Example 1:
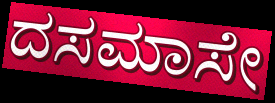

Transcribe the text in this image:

ದಸಮಾಸೇ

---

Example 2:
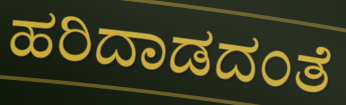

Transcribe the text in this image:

ಹರಿದಾಡದಂತೆ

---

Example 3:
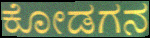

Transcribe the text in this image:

ಕೋಡಗನ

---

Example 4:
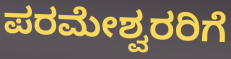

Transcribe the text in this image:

ಪರಮೇಶ್ವರರಿಗೆ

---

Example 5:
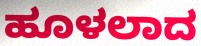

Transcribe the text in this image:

ಹೂಳಲಾದ